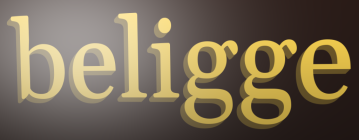
beligge